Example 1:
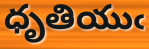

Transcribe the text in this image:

ధృతియుఁ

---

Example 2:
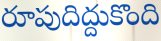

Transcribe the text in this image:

రూపుదిద్దుకొంది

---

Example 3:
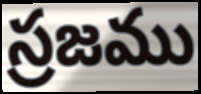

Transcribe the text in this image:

స్రజము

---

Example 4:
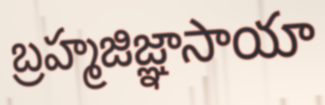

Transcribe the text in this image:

బ్రహ్మజిజ్ఞాసాయా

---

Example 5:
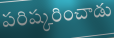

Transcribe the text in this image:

పరిష్కరించాడు